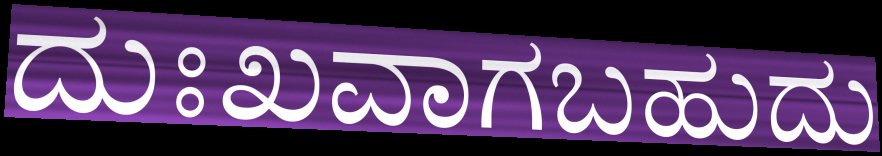
ದುಃಖವಾಗಬಹುದು